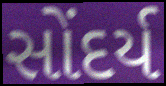
સોંદર્ય